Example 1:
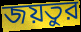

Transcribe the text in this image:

জয়তুর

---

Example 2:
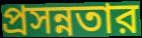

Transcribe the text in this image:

প্রসন্নতার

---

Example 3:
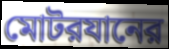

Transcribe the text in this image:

মোটরযানের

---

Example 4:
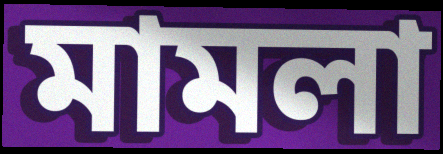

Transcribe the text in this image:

মামলা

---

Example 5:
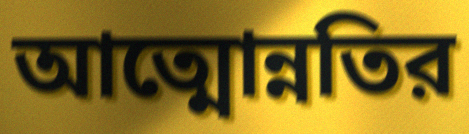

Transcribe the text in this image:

আত্মোন্নতির